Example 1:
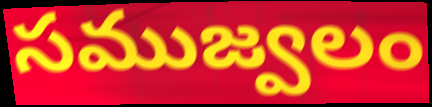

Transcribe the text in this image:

సముజ్వలం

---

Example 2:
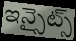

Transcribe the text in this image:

ఇన్సైట్స్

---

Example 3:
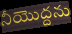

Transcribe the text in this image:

నీయొద్దను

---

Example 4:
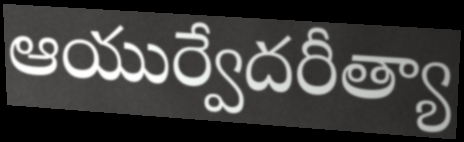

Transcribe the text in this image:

ఆయుర్వేదరీత్యా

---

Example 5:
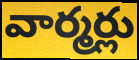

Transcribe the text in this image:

వార్మర్లు